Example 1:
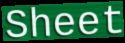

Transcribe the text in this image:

Sheet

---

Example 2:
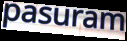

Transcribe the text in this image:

pasuram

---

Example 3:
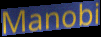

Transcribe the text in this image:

Manobi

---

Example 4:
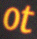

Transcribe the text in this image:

ot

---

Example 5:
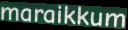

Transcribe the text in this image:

maraikkum